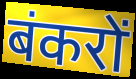
बंकरों